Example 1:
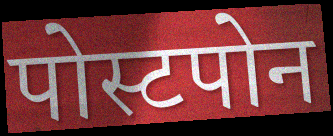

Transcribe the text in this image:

पोस्टपोन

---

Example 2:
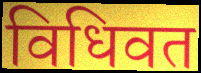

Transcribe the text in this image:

विधिवत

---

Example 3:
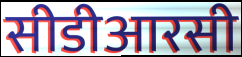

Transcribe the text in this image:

सीडीआरसी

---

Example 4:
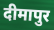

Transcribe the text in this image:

दीमापुर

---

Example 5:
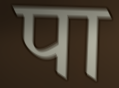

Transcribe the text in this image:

पा